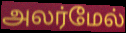
அலர்மேல்